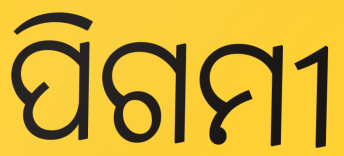
ପିଗମୀ